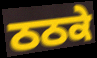
ਠਠਕੇ